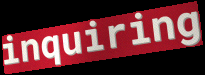
inquiring